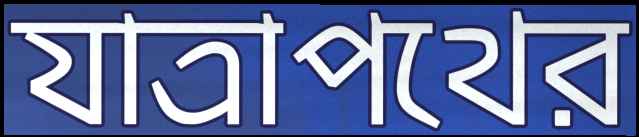
যাত্রাপথের